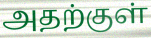
அதற்குள்